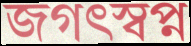
জগৎস্বপ্ন